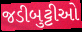
જડીબુટ્ટીઓ